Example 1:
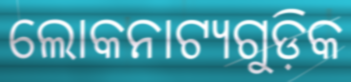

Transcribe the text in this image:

ଲୋକନାଟ୍ୟଗୁଡ଼ିକ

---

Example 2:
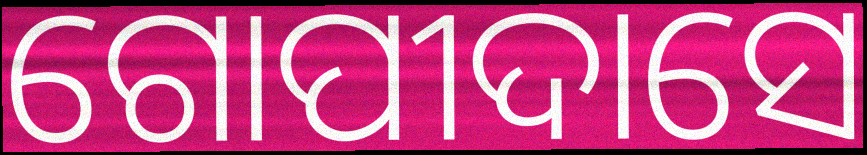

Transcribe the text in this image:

ଗୋପୀଦାସେ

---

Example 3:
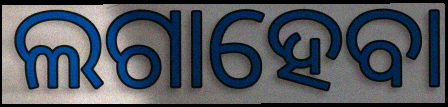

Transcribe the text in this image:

ଲଗାହେବା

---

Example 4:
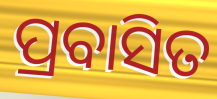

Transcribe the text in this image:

ପ୍ରବାସିତ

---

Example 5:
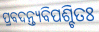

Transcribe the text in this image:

ପ୍ରବଦନ୍ତ୍ୟବିପଶ୍ଚିତଃ